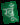
खूँ